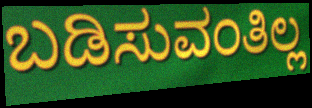
ಬಡಿಸುವಂತಿಲ್ಲ